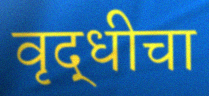
वृद्धीचा